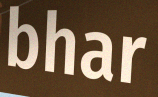
bhar